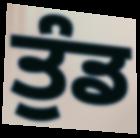
ਤੁੰਡ